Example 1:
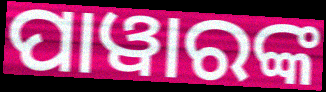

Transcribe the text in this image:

ପାୱାରଙ୍କ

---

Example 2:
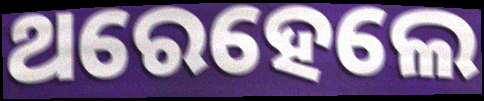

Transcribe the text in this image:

ଥରେହେଲେ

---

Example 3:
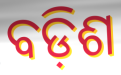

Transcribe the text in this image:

ବଡ଼ିଶ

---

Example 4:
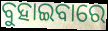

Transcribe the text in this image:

ବୁହାଇବାରେ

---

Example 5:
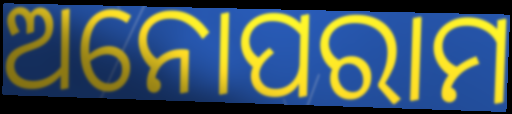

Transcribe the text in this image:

ଅନୋପରାମ